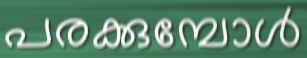
പരക്കുമ്പോൾ